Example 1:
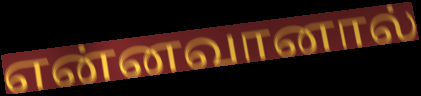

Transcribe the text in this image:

என்னவானால்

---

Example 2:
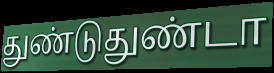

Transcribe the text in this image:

துண்டுதுண்டா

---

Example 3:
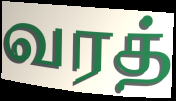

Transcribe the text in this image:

வரத்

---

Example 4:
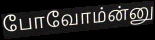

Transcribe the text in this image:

போவோம்ன்னு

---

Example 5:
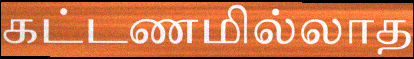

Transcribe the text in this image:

கட்டணமில்லாத